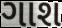
ગાશ